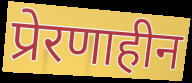
प्रेरणाहीन